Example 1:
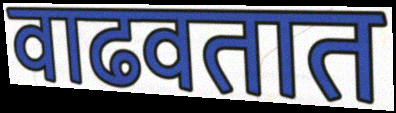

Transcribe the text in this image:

वाढवतात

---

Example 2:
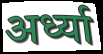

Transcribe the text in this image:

अर्ध्या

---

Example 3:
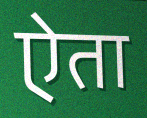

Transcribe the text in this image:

ऐता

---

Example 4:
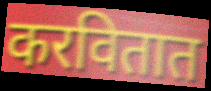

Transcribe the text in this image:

करवितात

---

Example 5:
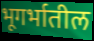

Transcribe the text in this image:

भूगर्भातील